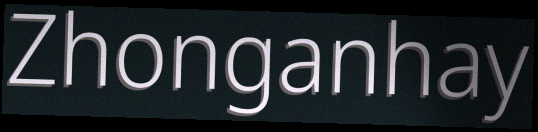
Zhonganhay